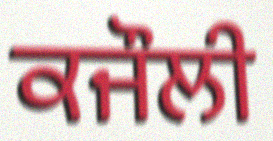
ਕਜੌਲੀ